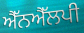
ਐੱਨਐੱਲਪੀ